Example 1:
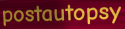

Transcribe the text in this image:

postautopsy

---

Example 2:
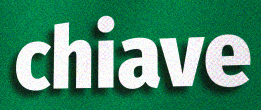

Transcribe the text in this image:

chiave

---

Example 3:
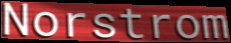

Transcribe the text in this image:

Norstrom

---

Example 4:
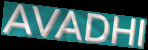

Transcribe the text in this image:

AVADHI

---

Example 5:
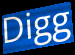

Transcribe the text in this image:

Digg